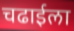
चढाईला